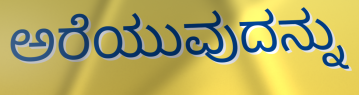
ಅರೆಯುವುದನ್ನು